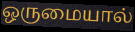
ஒருமையால்